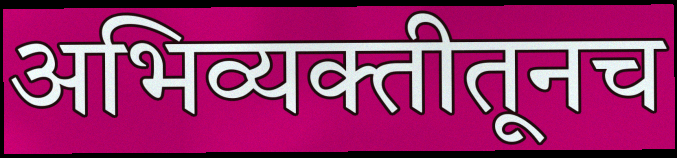
अभिव्यक्तीतूनच